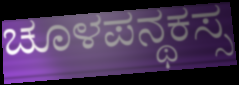
ಚೂಳಪನ್ಥಕಸ್ಸ